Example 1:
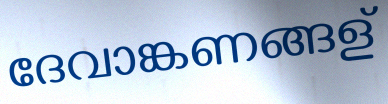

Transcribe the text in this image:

ദേവാങ്കണങ്ങള്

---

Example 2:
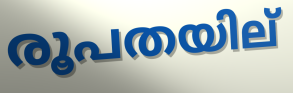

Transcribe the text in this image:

രൂപതയില്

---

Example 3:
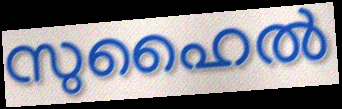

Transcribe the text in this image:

സുഹൈൽ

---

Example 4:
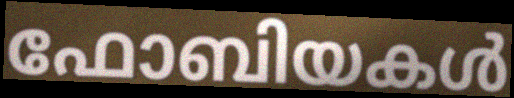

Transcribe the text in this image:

ഫോബിയകൾ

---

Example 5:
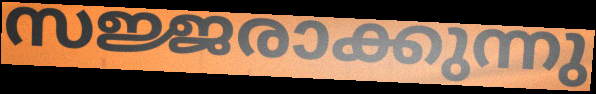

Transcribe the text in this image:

സജ്ജരാക്കുന്നു